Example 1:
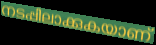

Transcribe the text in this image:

നടപ്പിലാക്കുകയാണ്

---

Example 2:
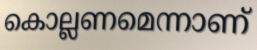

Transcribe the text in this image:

കൊല്ലണമെന്നാണ്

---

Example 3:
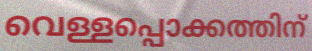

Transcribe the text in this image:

വെള്ളപ്പൊക്കത്തിന്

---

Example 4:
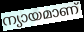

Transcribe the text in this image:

ന്യായമാണ്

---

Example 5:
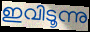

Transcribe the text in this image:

ഇവിടൂന്നു